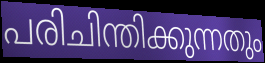
പരിചിന്തിക്കുന്നതും